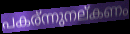
പകര്ന്നുനല്കണം